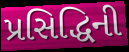
પ્રસિદ્ધિની